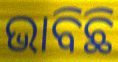
ଭାବିଛି